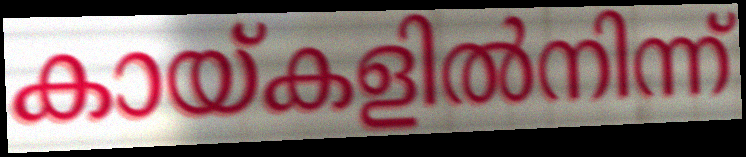
കായ്കളിൽനിന്ന്